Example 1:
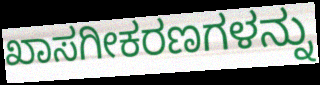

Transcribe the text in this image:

ಖಾಸಗೀಕರಣಗಳನ್ನು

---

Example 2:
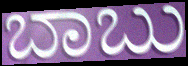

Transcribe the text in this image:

ಬಾಬು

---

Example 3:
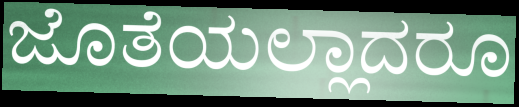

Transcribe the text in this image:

ಜೊತೆಯಲ್ಲಾದರೂ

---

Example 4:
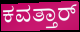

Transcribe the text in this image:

ಕವತ್ತಾರ್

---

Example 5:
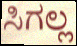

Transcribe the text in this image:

ಸಿಗಲ್ಲ